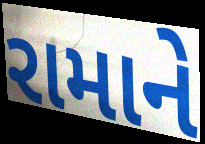
રામાને